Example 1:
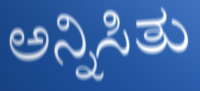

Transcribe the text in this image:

ಅನ್ನಿಸಿತು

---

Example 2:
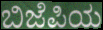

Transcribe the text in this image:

ಬಿಜೆಪಿಯ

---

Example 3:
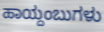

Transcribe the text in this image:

ಹಾಯ್ದಂಬುಗಳು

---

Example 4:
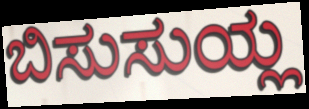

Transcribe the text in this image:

ಬಿಸುಸುಯ್ಲ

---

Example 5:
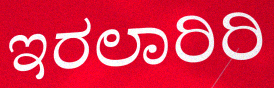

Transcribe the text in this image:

ಇರಲಾರಿರಿ